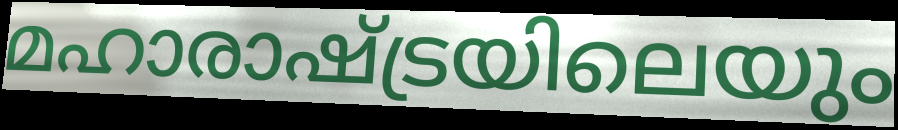
മഹാരാഷ്ട്രയിലെയും